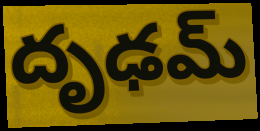
దృఢమ్